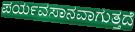
ಪರ್ಯವಸಾನವಾಗುತ್ತದೆ